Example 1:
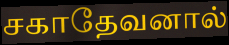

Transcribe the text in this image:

சகாதேவனால்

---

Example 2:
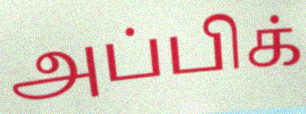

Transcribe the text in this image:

அப்பிக்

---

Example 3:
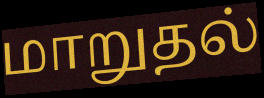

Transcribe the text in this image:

மாறுதல்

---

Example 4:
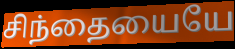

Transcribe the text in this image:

சிந்தையையே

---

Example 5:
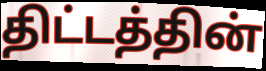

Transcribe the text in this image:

திட்டத்தின்